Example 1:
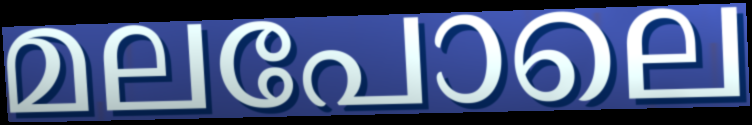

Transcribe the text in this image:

മലപോലെ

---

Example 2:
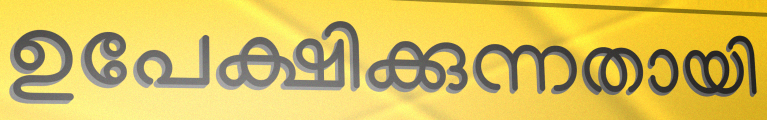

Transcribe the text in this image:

ഉപേക്ഷിക്കുന്നതായി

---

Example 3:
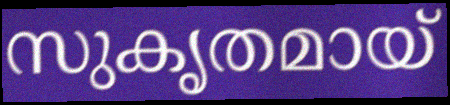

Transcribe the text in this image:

സുകൃതമായ്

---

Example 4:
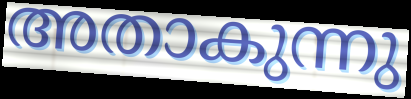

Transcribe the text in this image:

അതാകുന്നു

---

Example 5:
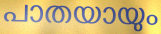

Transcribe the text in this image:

പാതയായും